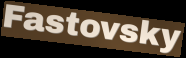
Fastovsky